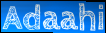
Adaahi